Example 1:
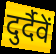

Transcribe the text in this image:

दुर्दैवें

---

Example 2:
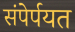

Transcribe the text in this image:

संपेर्पयत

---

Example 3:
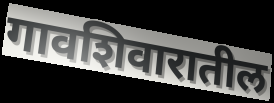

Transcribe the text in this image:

गावशिवारातील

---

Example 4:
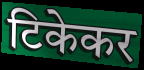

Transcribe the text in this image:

टिकेकर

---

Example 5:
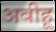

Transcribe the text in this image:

अबीहू